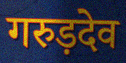
गरुड़देव